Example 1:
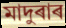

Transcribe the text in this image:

মাদুৰাৰ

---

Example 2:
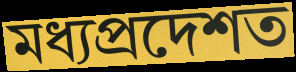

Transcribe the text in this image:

মধ্যপ্ৰদেশত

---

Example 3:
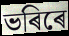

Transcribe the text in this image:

ভৰিৰে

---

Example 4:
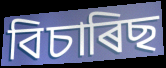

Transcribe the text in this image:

বিচাৰিছ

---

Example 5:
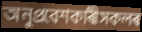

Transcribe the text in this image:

অনুপ্ৰবেশকাৰীসকলৰ